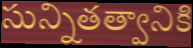
సున్నితత్వానికి